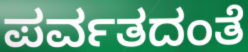
ಪರ್ವತದಂತೆ